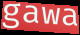
gawa